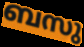
ബസു